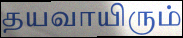
தயவாயிரும்